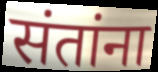
संतांना